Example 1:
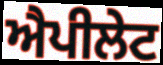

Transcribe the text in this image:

ਐਪੀਲੇਟ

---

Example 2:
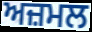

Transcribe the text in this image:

ਅਜ਼ਮਲ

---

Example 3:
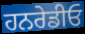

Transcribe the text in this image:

ਹਨਰੇਡੀਓ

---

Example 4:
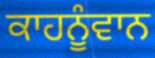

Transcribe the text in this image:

ਕਾਹਨੂੰਵਾਨ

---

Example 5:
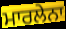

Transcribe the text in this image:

ਮਾਰਲੇਨਾ